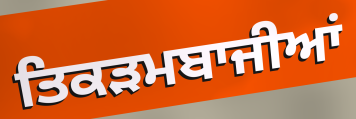
ਤਿਕੜਮਬਾਜੀਆਂ